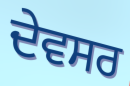
ਦੇਵਸਰ